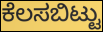
ಕೆಲಸಬಿಟ್ಟು